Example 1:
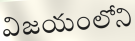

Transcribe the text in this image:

విజయంలోని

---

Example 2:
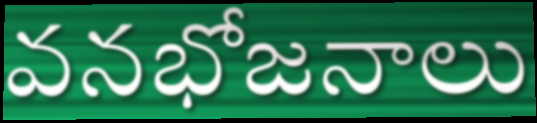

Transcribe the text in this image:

వనభోజనాలు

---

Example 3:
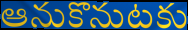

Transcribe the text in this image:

ఆనుకొనుటకు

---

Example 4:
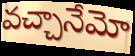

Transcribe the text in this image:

వచ్చానేమో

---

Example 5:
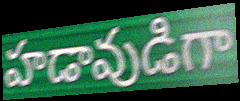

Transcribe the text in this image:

హడావుడిగా